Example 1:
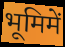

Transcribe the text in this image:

भूमिमें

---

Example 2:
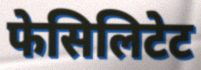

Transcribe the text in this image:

फेसिलिटेट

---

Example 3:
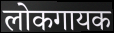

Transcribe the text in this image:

लोकगायक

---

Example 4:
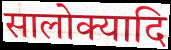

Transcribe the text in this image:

सालोक्यादि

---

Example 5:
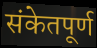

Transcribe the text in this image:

संकेतपूर्ण